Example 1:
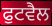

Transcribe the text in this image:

ਫੁਟਵੈਲ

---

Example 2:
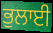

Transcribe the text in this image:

ਭੁਲਾਈ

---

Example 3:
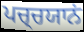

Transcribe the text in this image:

ਪਚ੍ਚਯਾਨਂ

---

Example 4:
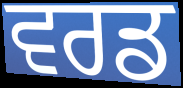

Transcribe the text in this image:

ਵਰਡ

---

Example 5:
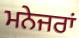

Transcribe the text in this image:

ਮਨੇਜਰਾਂ